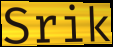
Srik